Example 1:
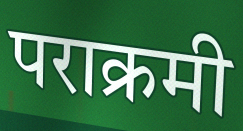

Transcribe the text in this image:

पराक्रमी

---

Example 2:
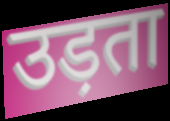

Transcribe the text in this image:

उड़ता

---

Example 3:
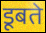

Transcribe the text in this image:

डूबते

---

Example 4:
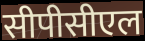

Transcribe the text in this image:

सीपीसीएल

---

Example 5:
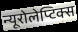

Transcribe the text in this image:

न्यूरोलेप्टिक्स